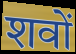
शवों